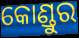
କୋଣ୍ଡୁର